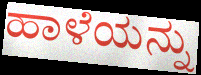
ಹಾಳೆಯನ್ನು